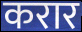
करार